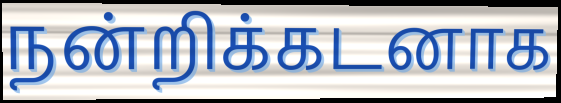
நன்றிக்கடனாக